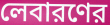
লেবারণের